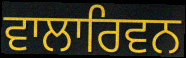
ਵਾਲਾਰਿਵਨ